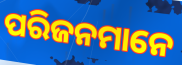
ପରିଜନମାନେ